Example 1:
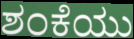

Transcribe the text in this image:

ಶಂಕೆಯು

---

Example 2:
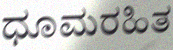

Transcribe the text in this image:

ಧೂಮರಹಿತ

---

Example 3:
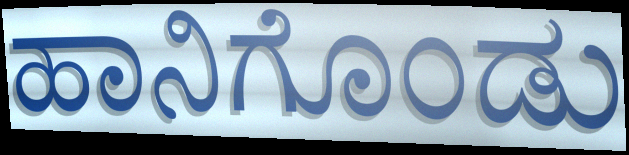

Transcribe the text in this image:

ಹಾನಿಗೊಂಡು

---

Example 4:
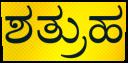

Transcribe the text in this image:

ಶತ್ರುಹ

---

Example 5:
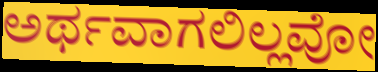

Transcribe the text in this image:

ಅರ್ಥವಾಗಲಿಲ್ಲವೋ